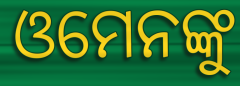
ଓମେନଙ୍କୁ